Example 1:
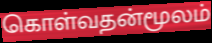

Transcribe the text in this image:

கொள்வதன்மூலம்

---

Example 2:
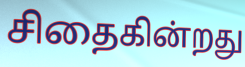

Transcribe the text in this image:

சிதைகின்றது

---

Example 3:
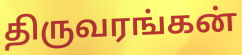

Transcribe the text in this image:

திருவரங்கன்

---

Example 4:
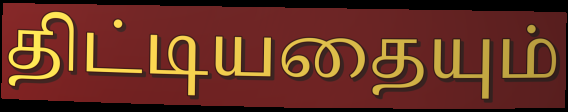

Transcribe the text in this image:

திட்டியதையும்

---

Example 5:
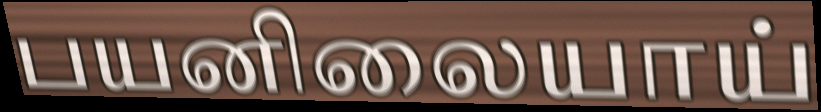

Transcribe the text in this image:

பயனிலையாய்